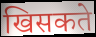
खिसकते